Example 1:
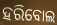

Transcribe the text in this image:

ହରିବୋଲ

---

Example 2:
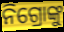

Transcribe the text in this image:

ନିଗ୍ରୋଙ୍କୁ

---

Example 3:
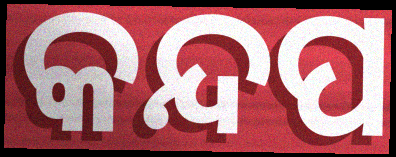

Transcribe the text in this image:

କନ୍ଦପ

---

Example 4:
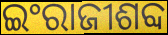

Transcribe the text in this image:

ଇଂରାଜୀଶବ୍ଦ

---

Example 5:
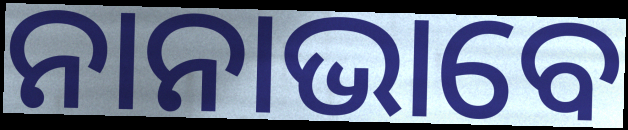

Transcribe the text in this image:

ନାନାଭାବେ